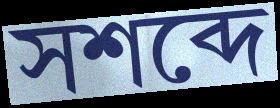
সশব্দে